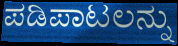
ಪಡಿಪಾಟಲನ್ನು